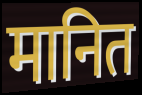
मानित